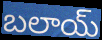
బలాయ్